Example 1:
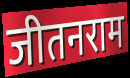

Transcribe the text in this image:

जीतनराम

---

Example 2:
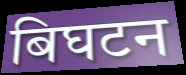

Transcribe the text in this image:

बिघटन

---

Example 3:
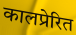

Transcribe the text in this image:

कालप्रेरित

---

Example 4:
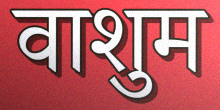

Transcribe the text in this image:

वाशुम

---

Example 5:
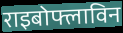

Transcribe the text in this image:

राइबोफ्लाविन